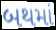
બથમાં